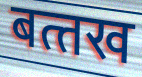
बत्‍तख